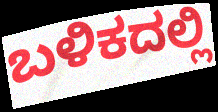
ಬಳಿಕದಲ್ಲಿ